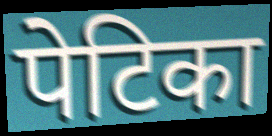
पेटिका